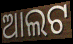
ଆଲଟ